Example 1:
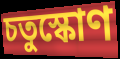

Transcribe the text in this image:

চতুস্কোণ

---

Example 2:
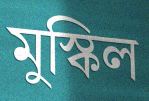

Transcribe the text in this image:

মুস্কিল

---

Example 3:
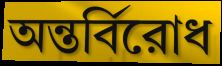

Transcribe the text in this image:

অন্তর্বিরোধ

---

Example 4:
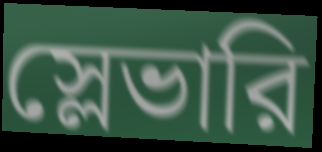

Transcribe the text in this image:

স্লেভারি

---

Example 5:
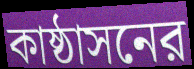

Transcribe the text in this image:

কাষ্ঠাসনের